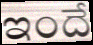
ఇందే